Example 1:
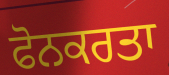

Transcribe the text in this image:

ਫੋਨਕਰਤਾ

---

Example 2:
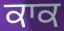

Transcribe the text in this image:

ਕਾਕ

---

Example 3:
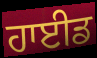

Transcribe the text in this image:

ਹਾਈਡ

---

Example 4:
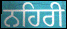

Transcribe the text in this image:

ਨਹਿਰੀ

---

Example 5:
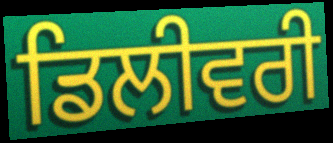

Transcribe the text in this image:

ਡਿਲੀਵਰੀ